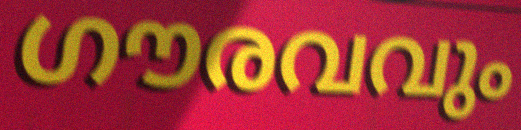
ഗൗരവവും